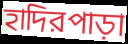
হাদিরপাড়া